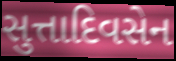
સુત્તાદિવસેન